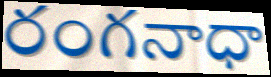
రంగనాధా